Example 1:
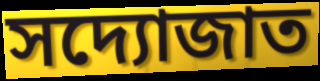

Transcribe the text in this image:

সদ্যোজাত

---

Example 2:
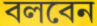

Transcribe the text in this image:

বলবেন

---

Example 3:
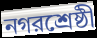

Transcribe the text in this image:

নগরশ্রেষ্ঠী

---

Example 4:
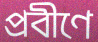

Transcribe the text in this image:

প্রবীণে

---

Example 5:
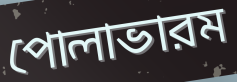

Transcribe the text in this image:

পোলাভারম